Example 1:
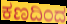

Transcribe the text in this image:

ಕಣದಿಂದ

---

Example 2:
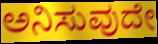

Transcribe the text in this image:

ಅನಿಸುವುದೇ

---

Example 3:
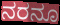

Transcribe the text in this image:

ನರನೂ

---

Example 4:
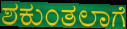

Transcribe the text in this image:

ಶಕುಂತಲಾಗೆ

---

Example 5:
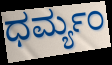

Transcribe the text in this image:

ಧರ್ಮ್ಯಂ